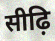
सीढ़ि